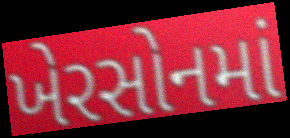
ખેરસોનમાં